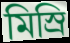
মিস্রি